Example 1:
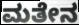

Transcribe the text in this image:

ಮತೇನ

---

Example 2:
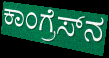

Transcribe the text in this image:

ಕಾಂಗ್ರೆಸ್‍ನ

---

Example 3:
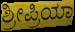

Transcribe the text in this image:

ಶ್ರೀಪ್ರಿಯಾ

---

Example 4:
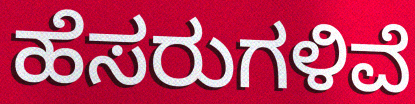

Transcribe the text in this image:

ಹೆಸರುಗಳಿವೆ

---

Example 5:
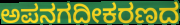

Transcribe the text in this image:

ಅಪನಗದೀಕರಣದ